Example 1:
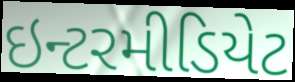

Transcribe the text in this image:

ઇન્ટરમીડિયેટ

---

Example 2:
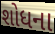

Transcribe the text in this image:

શોધના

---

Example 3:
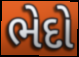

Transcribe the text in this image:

ભેદો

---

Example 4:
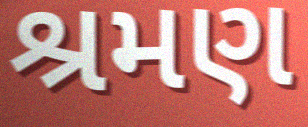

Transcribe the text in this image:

શ્રમણ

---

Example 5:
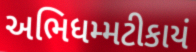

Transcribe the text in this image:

અભિધમ્મટીકાયં